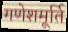
गणेशमूर्ति